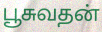
பூசுவதன்